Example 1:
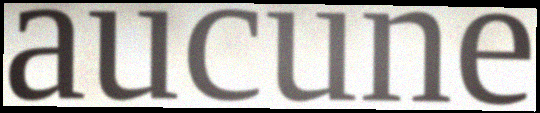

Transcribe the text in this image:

aucune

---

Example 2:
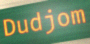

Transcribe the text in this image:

Dudjom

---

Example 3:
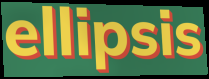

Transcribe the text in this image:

ellipsis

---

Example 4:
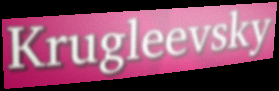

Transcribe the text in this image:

Krugleevsky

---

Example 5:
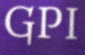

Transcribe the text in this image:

GPI